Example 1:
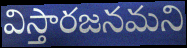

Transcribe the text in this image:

విస్తారజనమని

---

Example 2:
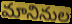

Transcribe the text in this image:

మానినుల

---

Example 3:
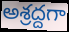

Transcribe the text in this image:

అశ్రద్దగా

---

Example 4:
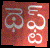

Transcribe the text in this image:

థెఫ్ట్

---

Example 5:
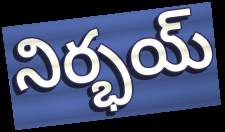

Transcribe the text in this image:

నిర్భయ్